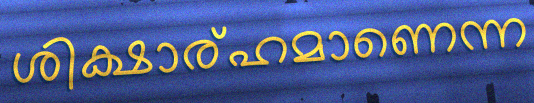
ശിക്ഷാര്ഹമാണെന്ന